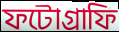
ফটোগ্ৰাফি